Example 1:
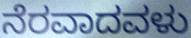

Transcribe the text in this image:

ನೆರವಾದವಳು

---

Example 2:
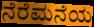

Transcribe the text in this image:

ನೆರೆಮನೆಯ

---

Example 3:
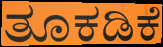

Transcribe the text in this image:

ತೂಕಡಿಕೆ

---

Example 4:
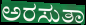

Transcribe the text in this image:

ಅರಸುತಾ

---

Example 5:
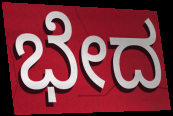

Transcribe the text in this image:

ಭೇದ